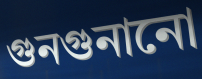
গুনগুনানো